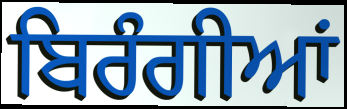
ਬਿਰੰਗੀਆਂ